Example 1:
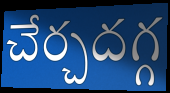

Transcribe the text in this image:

చేర్చదగ్గ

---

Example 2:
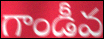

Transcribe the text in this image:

గాండీవ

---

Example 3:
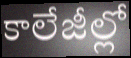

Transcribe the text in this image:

కాలేజీల్లో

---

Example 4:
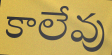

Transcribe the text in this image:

కాలేవు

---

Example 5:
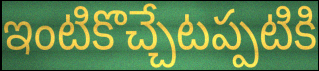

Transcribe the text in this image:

ఇంటికొచ్చేటప్పటికి